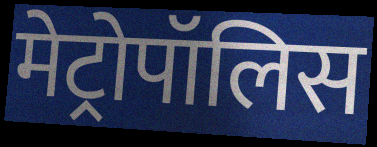
मेट्रोपॉलिस